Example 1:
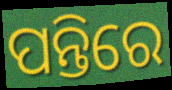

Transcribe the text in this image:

ପନ୍ତିରେ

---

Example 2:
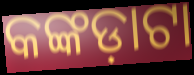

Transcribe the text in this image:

କଙ୍କଡ଼ାଟା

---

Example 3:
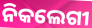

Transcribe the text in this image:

ନିକଲେଗୀ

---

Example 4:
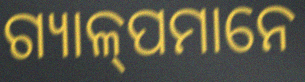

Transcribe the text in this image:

ଗ୍ୟାଳ୍‍ପମାନେ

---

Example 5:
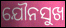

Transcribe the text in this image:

ଯୌନସୁଖ